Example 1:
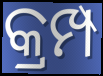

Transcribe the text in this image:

କ୍ରମ୍ପ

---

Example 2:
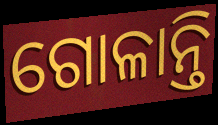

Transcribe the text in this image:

ଗୋଳାନ୍ତି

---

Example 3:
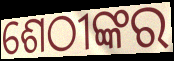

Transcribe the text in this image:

ଶେଠୀଙ୍କର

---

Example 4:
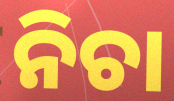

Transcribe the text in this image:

ନିଚା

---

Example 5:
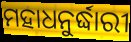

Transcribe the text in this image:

ମହାଧନୁର୍ଦ୍ଧାରୀ